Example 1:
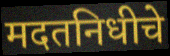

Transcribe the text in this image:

मदतनिधीचे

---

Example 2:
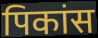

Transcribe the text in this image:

पिकांस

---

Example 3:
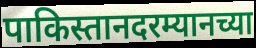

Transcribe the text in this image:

पाकिस्तानदरम्यानच्या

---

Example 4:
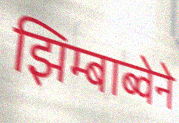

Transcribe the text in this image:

झिम्बाब्वेने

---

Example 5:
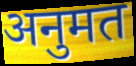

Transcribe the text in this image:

अनुमत